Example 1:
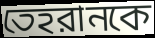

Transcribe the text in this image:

তেহরানকে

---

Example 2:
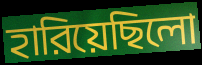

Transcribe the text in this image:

হারিয়েছিলো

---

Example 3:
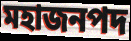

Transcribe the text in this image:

মহাজনপদ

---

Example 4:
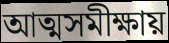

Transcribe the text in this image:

আত্মসমীক্ষায়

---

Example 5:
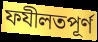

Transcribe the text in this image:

ফযীলতপূর্ণ